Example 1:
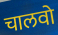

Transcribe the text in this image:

चालवो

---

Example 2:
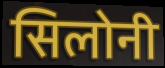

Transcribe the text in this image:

सिलोनी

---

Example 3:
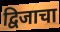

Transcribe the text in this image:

द्विजाचा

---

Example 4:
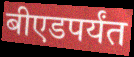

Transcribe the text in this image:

बीएडपर्यंत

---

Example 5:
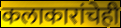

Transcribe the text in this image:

कलाकारांचेही